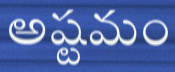
అష్టమం